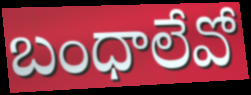
బంధాలేవో